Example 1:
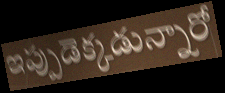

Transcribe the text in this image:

ఇప్పుడెక్కడున్నారో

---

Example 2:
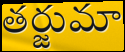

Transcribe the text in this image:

తర్జుమా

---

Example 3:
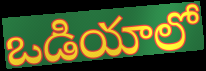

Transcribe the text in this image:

ఒడియాలో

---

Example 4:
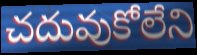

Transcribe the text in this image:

చదువుకోలేని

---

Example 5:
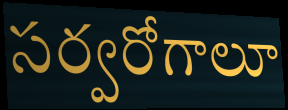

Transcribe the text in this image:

సర్వరోగాలూ